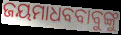
ଜୟମାଧବବାବୁଙ୍କୁ